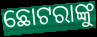
ଛୋଟରାଙ୍କୁ